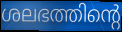
ശലഭത്തിന്റെ